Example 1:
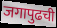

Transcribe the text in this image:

जगापुढची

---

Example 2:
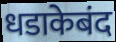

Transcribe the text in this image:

धडाकेबंद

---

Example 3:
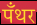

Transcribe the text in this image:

पँथर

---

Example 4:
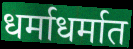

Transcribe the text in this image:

धर्माधर्मात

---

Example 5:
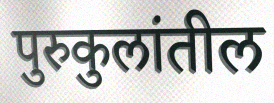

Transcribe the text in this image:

पुरुकुलांतील